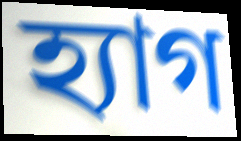
হ্যাগ